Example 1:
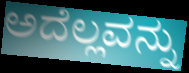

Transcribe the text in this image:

ಅದೆಲ್ಲವನ್ನು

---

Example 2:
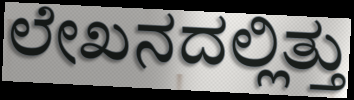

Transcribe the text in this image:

ಲೇಖನದಲ್ಲಿತ್ತು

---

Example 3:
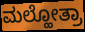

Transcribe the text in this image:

ಮಲ್ಹೋತ್ರಾ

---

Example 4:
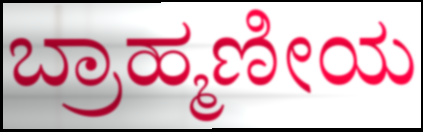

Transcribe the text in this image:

ಬ್ರಾಹ್ಮಣೀಯ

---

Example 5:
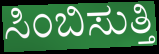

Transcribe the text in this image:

ಸಿಂಬಿಸುತ್ತಿ